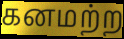
கனமற்ற